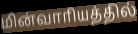
மின்வாரியத்தில்